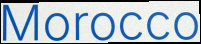
Morocco